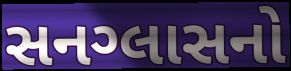
સનગ્લાસનો